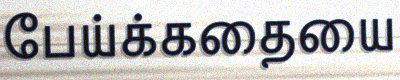
பேய்க்கதையை